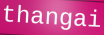
thangai